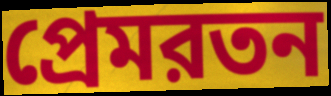
প্রেমরতন